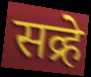
सव्र्हे